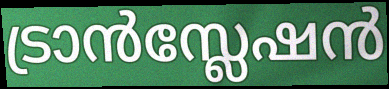
ട്രാൻസ്ലേഷൻ